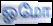
ஓமோ